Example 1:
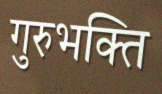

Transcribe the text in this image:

गुरुभक्ति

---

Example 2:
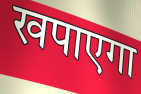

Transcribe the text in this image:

खपाएगा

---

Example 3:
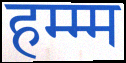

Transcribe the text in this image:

हम्म्म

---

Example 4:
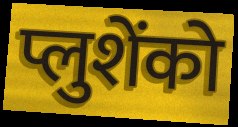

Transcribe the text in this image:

प्लुशेंको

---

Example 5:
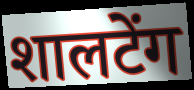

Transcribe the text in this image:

शालटेंग